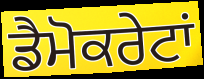
ਡੈਮੋਕਰੇਟਾਂ